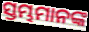
ସ୍ତମ୍ଭମାନଙ୍କ